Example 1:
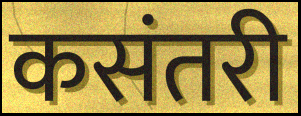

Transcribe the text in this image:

कसंतरी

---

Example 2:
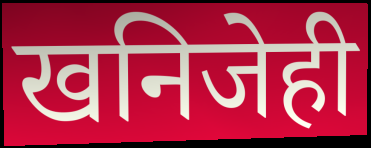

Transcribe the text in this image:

खनिजेही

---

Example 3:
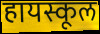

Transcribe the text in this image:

हायस्‍कूल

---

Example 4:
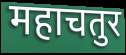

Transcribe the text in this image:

महाचतुर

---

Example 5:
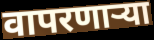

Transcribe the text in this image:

वापरणाऱ्या